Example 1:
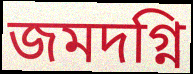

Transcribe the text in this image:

জমদগ্নি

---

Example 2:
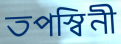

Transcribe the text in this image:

তপস্বিনী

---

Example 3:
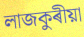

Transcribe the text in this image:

লাজকুৰীয়া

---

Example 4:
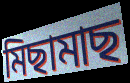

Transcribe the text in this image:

মিছামাছ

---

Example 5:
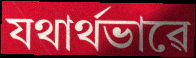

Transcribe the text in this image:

যথাৰ্থভাৱে